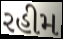
રહીમ